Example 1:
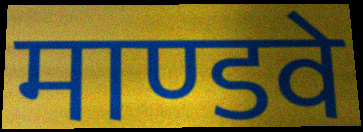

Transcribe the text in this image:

माण्डवे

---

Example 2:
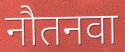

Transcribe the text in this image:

नौतनवा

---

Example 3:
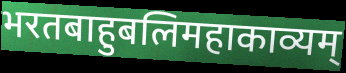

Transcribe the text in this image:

भरतबाहुबलिमहाकाव्यम्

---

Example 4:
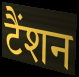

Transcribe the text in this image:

टैंशन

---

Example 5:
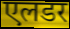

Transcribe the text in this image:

एलडर